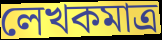
লেখকমাত্র